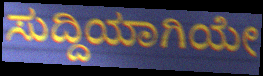
ಸುದ್ದಿಯಾಗಿಯೇ